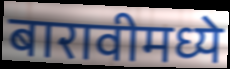
बारावीमध्ये